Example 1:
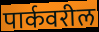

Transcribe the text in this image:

पार्कवरील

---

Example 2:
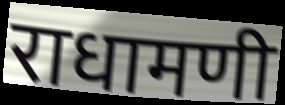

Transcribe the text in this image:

राधामणी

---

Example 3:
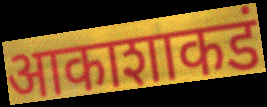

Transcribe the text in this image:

आकाशाकडं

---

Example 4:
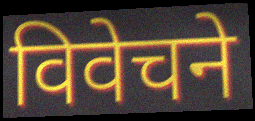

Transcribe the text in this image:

विवेचने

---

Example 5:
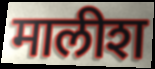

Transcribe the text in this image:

मालीश